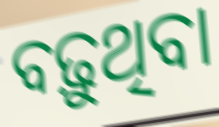
ବଢ଼ୁଥିବା